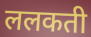
ललकती